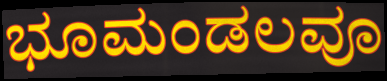
ಭೂಮಂಡಲವೂ